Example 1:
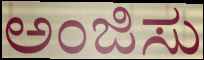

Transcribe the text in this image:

ಅಂಜಿಸು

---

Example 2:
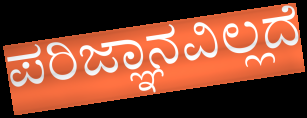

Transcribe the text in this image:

ಪರಿಜ್ಞಾನವಿಲ್ಲದೆ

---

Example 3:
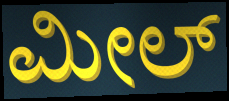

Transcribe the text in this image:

ಮೀಲ್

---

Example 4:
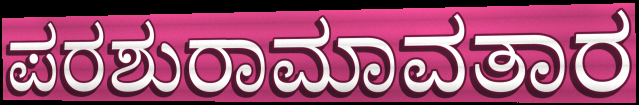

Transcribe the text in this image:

ಪರಶುರಾಮಾವತಾರ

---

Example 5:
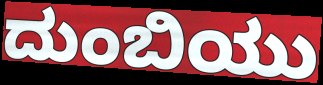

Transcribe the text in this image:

ದುಂಬಿಯು